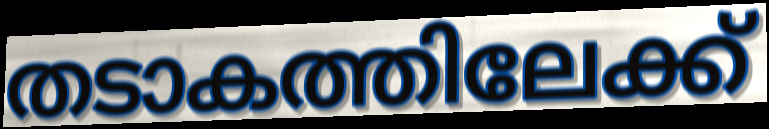
തടാകത്തിലേക്ക്